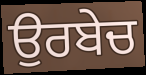
ਉਰਬੇਚ